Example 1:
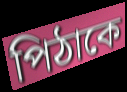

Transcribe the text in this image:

পিঠাকে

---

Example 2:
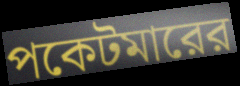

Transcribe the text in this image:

পকেটমারের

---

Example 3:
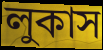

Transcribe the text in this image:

লুকাস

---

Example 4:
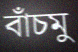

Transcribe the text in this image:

বাঁচমু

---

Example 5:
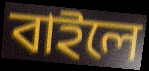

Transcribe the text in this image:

বাইলে